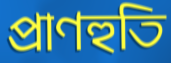
প্ৰাণহুতি